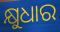
କ୍ଷୁଧାର